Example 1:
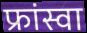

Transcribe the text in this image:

फ्रांस्वा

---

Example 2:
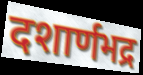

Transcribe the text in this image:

दशार्णभद्र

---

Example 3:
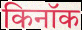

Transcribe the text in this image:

किनॉक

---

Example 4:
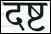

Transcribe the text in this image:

दष्ट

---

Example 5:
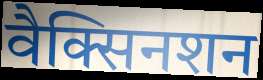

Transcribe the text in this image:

वैक्सिनशन